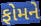
ફોમને